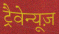
ट्रैवेन्यूज़